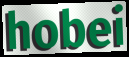
hobei